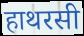
हाथरसी